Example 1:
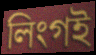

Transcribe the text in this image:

লিংগই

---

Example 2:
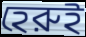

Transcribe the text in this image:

হেৰুই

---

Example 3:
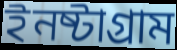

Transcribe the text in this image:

ইনষ্টাগ্ৰাম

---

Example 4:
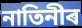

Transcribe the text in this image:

নাতিনীৰ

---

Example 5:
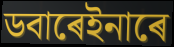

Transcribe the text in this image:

ডবাৰেইনাৰে